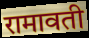
रामावती